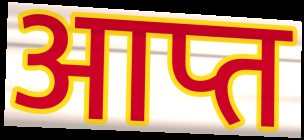
आप्त